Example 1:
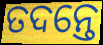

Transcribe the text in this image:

ତଦନ୍ତେ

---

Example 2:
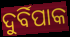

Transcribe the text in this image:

ଦୁର୍ବିପାକ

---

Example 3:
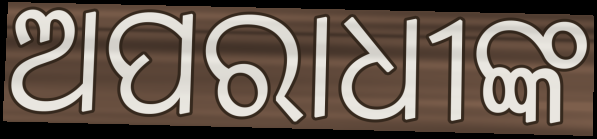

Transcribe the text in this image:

ଅପରାଧୀଙ୍କ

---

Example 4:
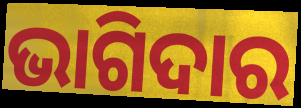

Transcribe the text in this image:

ଭାଗିଦାର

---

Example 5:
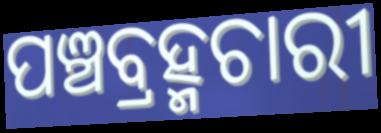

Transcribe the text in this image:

ପଞ୍ଚବ୍ରହ୍ମଚାରୀ